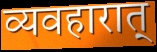
व्यवहारात्